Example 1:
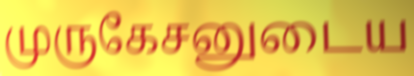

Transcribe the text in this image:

முருகேசனுடைய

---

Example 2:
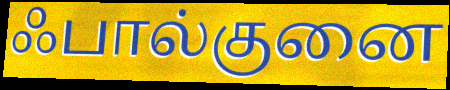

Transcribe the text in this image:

ஃபால்குனை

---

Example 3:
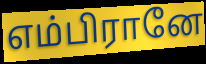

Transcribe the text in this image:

எம்பிரானே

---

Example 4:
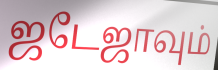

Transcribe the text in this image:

ஜடேஜாவும்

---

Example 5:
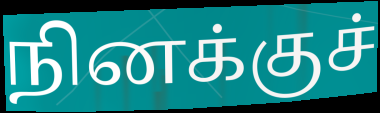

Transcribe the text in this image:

நினக்குச்